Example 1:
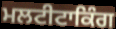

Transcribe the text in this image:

ਮਲਟੀਟਾਕਿੰਗ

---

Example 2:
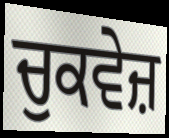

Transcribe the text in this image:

ਚੁਕਵੇਜ਼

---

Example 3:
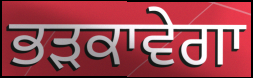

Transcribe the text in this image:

ਭੜਕਾਵੇਗਾ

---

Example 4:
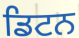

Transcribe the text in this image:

ਡਿਟਨ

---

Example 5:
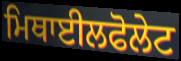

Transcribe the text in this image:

ਮਿਥਾਈਲਫੋਲੇਟ